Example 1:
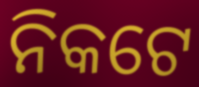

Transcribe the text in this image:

ନିକଟେ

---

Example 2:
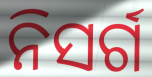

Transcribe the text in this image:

ନିସର୍ଗ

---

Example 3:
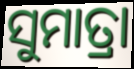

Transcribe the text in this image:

ସୁମାତ୍ରା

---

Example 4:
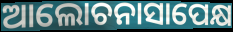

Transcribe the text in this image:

ଆଲୋଚନାସାପେକ୍ଷ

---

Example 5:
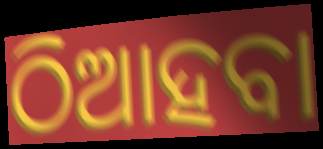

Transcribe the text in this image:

ଠିଆହବା